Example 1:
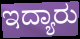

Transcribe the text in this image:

ಇದ್ಯಾರು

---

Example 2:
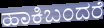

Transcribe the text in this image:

ಹಾಕಿಬಂದರೆ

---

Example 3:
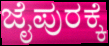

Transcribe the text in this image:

ಜೈಪುರಕ್ಕೆ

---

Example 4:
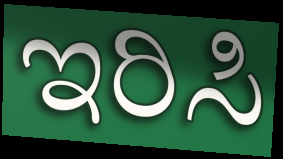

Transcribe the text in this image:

ಇರಿಸಿ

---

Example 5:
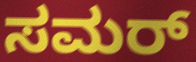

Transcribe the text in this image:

ಸಮರ್